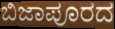
ಬಿಜಾಪೂರದ